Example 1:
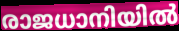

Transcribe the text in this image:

രാജധാനിയിൽ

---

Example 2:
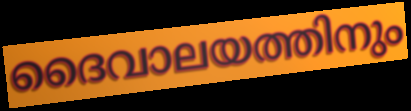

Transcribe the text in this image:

ദൈവാലയത്തിനും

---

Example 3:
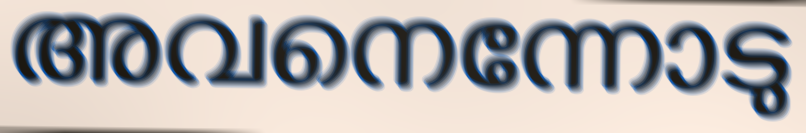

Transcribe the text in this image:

അവനെന്നോടു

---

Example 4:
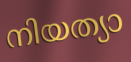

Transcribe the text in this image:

നിയത്യാ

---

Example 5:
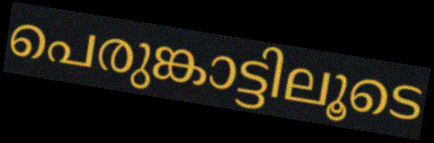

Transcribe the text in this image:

പെരുങ്കാട്ടിലൂടെ